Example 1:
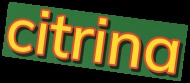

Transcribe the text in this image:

citrina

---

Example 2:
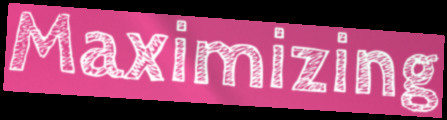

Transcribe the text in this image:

Maximizing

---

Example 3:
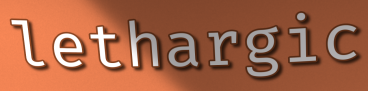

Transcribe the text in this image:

lethargic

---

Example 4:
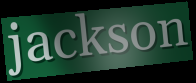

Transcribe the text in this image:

jackson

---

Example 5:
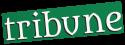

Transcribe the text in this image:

tribune